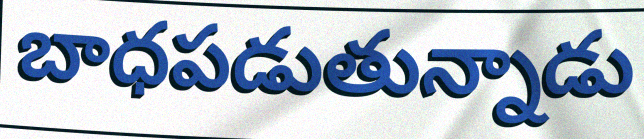
బాధపడుతున్నాడు